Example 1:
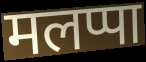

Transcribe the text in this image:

मलप्पा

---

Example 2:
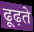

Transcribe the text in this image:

ढूढ़ते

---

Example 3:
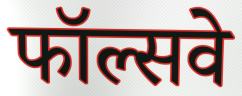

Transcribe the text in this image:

फॉल्सवे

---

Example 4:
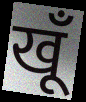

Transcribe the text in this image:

खूँ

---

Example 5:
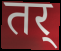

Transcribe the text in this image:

तर्